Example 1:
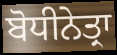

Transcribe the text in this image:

ਬੋਧੀਨੇਤ੍ਰਾ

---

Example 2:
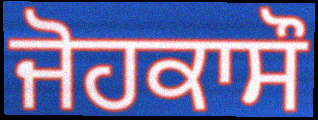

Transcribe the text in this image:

ਜੋਹਕਾਸੌ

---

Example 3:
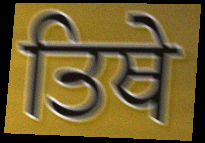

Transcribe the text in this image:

ਤਿਥੇ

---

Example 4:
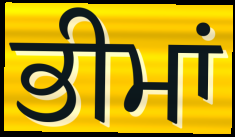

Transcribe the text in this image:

ਭੀਮਾਂ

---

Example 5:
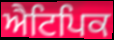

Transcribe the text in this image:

ਐਟਿਪਿਕ